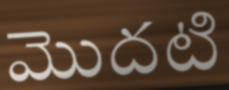
మొదటి